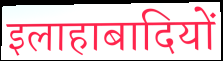
इलाहाबादियों